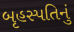
બૃહસ્પતિનું